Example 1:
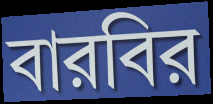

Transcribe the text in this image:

বারবির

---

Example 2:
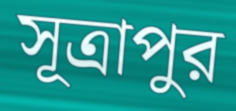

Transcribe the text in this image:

সূত্রাপুর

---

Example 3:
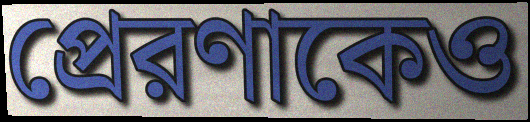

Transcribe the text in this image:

প্রেরণাকেও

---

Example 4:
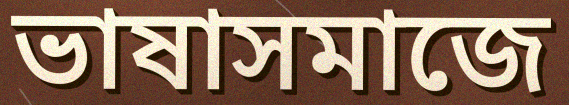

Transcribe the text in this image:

ভাষাসমাজে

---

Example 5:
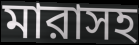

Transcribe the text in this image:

মারাসহ